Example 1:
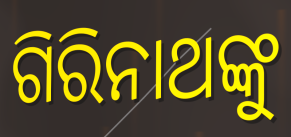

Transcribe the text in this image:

ଗିରିନାଥଙ୍କୁ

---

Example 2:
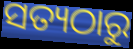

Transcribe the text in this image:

ସତ୍ୟଠାରୁ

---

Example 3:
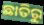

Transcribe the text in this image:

ଛାତିରୁ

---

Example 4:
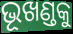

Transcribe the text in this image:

ଭୂଖଣ୍ଡକୁ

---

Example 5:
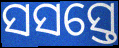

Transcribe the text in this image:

ସସସ୍ତେ